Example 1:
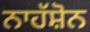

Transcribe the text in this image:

ਨਾਹੱਸ਼ੋਨ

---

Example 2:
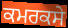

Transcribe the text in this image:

ਕਮਰਕਸੇ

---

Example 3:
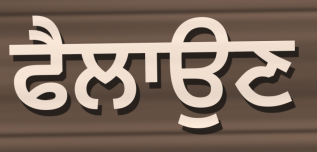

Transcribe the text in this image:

ਫੈਲਾਉਣ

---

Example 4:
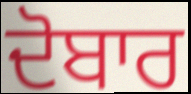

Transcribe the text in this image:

ਦੋਬਾਰ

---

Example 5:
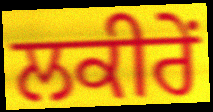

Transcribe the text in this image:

ਲਕੀਰੇਂ